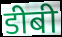
डीबी